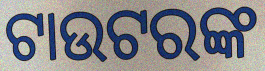
ଟାଉଟରଙ୍କ